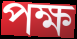
পক্ষ